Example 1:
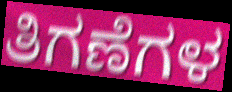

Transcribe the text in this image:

ತಿಗಣೆಗಳ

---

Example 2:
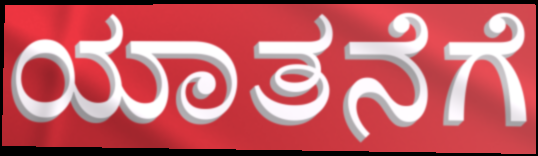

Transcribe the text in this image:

ಯಾತನೆಗೆ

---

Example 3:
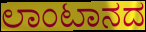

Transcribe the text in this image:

ಲಾಂಟಾನದ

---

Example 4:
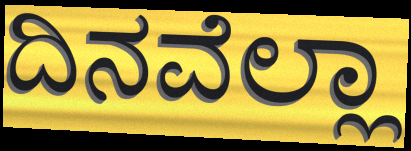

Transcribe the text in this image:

ದಿನವೆಲ್ಲಾ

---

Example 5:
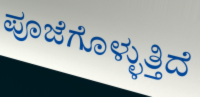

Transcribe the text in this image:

ಪೂಜೆಗೊಳ್ಳುತ್ತಿದೆ